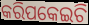
କରିପକେଇଚି